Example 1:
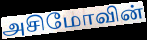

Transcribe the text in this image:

அசிமோவின்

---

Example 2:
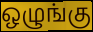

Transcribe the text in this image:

ஒழுங்கு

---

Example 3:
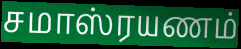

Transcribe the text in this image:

சமாஸ்ரயணம்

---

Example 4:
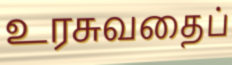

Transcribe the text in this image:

உரசுவதைப்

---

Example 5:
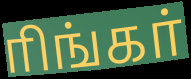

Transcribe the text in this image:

ரிங்கர்